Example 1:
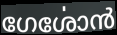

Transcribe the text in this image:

ഗേൎശോൻ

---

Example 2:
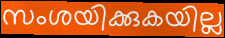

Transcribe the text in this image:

സംശയിക്കുകയില്ല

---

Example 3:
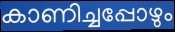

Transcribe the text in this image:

കാണിച്ചപ്പോഴും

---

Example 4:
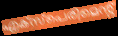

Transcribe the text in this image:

എക്സ്പെരിമെന്റ്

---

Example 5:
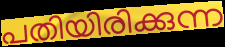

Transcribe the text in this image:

പതിയിരിക്കുന്ന